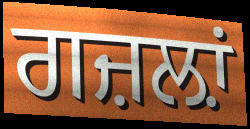
ਗਜ਼ਲ਼ਾਂ